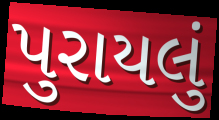
પુરાયલું